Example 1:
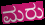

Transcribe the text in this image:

ಮರು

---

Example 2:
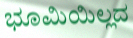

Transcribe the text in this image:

ಭೂಮಿಯಿಲ್ಲದ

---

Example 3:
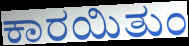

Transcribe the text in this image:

ಕಾರಯಿತುಂ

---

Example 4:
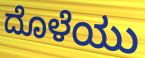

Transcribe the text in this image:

ದೊಳೆಯು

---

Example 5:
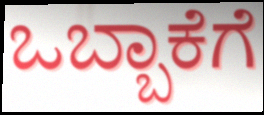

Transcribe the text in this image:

ಒಬ್ಬಾಕೆಗೆ